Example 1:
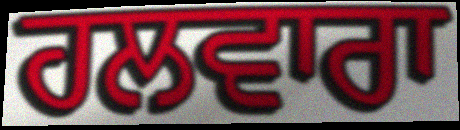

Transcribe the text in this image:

ਹਲਵਾਰਾ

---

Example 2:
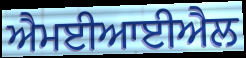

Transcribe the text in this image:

ਐਮਈਆਈਐਲ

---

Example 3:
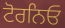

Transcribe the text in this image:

ਟੋਰਨਿਓ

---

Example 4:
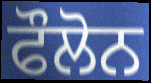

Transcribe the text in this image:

ਫੌਲੋਨ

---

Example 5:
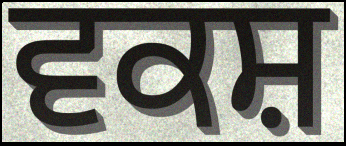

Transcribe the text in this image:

ਵਕਸ਼